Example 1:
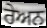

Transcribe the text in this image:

ਰੇਅਨ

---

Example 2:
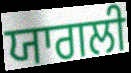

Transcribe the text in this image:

ਯਾਗਲੀ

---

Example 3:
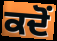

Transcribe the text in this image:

ਕਦੋਂ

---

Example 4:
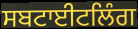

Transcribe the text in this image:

ਸਬਟਾਈਟਲਿੰਗ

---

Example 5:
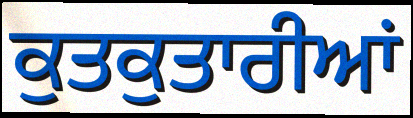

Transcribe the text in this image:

ਕੁਤਕੁਤਾਰੀਆਂ